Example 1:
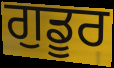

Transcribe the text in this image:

ਗੁਡੂਰ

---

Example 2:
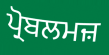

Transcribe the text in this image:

ਪ੍ਰੋਬਲਮਜ਼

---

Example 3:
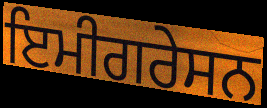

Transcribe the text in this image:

ਇਮੀਗਰੇਸਨ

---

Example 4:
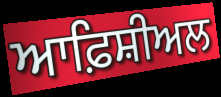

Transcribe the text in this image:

ਆਫ਼ਿਸ਼ੀਅਲ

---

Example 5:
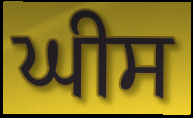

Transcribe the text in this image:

ਘੀਸ